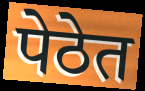
पेठेत